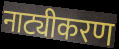
नाट्यीकरण